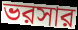
ভরসার